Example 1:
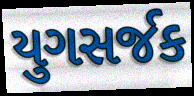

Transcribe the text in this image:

યુગસર્જક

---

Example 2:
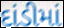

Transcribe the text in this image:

દાંડીમાં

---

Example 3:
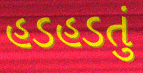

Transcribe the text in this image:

હડહડતું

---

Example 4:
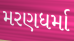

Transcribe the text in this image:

મરણધર્મા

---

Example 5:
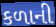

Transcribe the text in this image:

કળાની